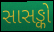
સાસઙ્કો